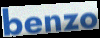
benzo